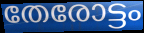
തേരോട്ടം